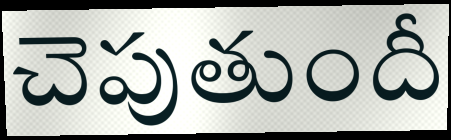
చెపుతుందీ